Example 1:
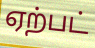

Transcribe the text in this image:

ஏற்பட்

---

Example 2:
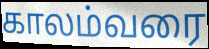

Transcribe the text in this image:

காலம்வரை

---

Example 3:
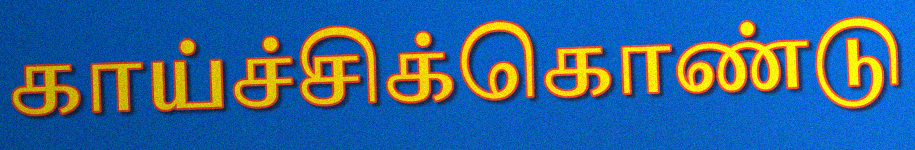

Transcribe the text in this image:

காய்ச்சிக்கொண்டு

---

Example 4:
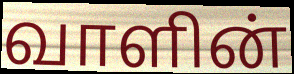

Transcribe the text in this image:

வாளின்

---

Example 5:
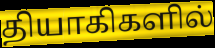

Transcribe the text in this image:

தியாகிகளில்